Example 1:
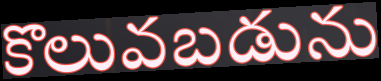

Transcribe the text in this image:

కొలువబడును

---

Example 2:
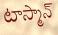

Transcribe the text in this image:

టాస్మాన్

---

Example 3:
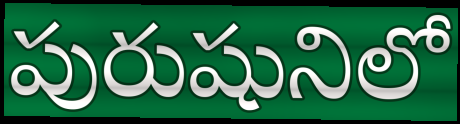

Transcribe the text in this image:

పురుషునిలో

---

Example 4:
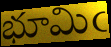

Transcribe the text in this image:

భూమిఁ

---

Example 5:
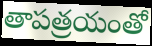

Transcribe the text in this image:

తాపత్రయంతో